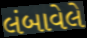
લંબાવેલે